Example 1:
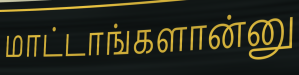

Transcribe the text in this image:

மாட்டாங்களான்னு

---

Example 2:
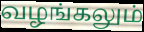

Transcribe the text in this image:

வழங்கலும்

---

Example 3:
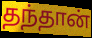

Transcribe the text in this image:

தந்தான்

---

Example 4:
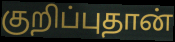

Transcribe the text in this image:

குறிப்புதான்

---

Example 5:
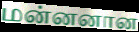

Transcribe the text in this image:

மன்னனான